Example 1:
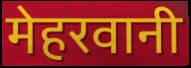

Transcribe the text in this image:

मेहरवानी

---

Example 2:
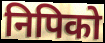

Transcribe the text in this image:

निपिको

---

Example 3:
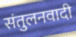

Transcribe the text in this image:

संतुलनवादी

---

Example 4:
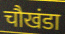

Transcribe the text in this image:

चौखंडा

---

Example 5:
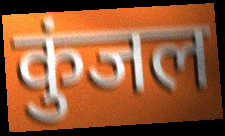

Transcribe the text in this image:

कुंजल